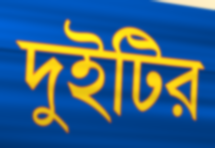
দুইটির